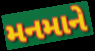
મનમાને